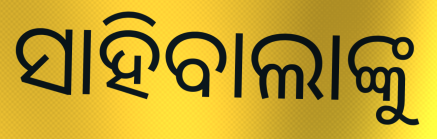
ସାହିବାଲାଙ୍କୁ